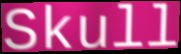
Skull